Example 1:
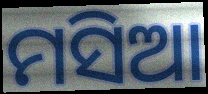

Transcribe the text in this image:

ମସିଆ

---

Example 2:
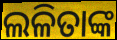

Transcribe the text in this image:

ଲଳିତାଙ୍କ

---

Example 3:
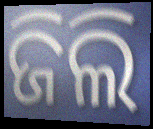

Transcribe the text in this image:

ଜିଲି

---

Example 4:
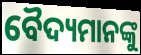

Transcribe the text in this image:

ବୈଦ୍ୟମାନଙ୍କୁ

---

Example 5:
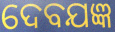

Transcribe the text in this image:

ଦେବଯଜ୍ଞ